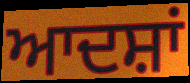
ਆਦਸ਼ਾਂ